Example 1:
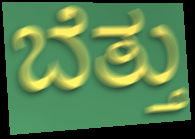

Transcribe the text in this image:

ಬೆತ್ತು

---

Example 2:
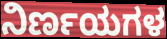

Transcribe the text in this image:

ನಿರ್ಣಯಗಳ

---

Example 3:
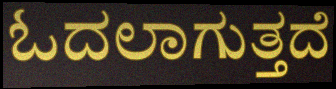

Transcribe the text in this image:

ಓದಲಾಗುತ್ತದೆ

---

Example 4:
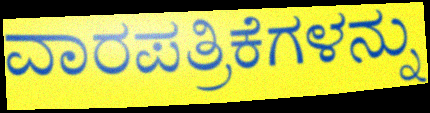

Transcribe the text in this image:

ವಾರಪತ್ರಿಕೆಗಳನ್ನು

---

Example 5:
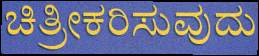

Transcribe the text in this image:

ಚಿತ್ರೀಕರಿಸುವುದು